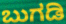
ಬುಗಡಿ